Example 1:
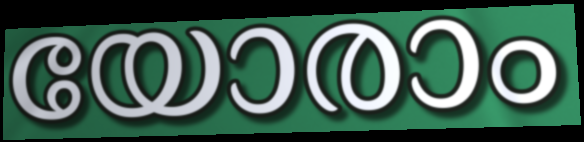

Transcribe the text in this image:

യോരാം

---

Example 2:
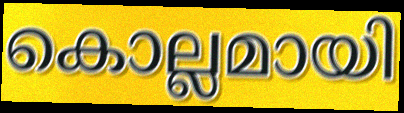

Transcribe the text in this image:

കൊല്ലമായി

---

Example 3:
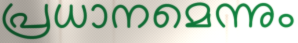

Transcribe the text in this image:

പ്രധാനമെന്നും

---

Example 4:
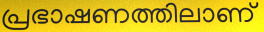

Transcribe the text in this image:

പ്രഭാഷണത്തിലാണ്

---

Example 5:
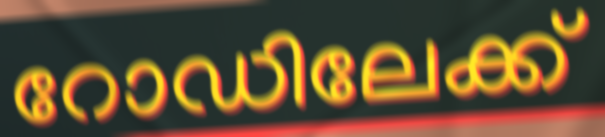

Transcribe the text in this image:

റോഡിലേക്ക്